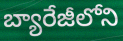
బ్యారేజీలోని